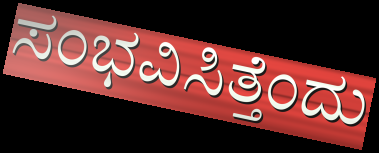
ಸಂಭವಿಸಿತ್ತೆಂದು